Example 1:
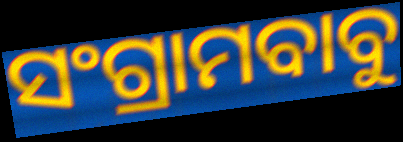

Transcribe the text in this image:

ସଂଗ୍ରାମବାବୁ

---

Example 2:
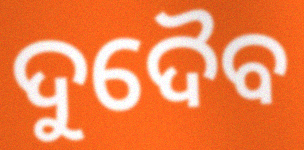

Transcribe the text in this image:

ଦୁଦୈବ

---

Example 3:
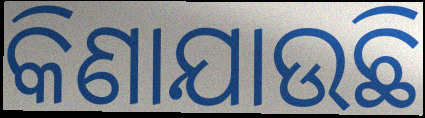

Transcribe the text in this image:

କିଣାଯାଉଛି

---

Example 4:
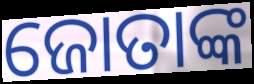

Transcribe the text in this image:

ଜୋତାଙ୍କ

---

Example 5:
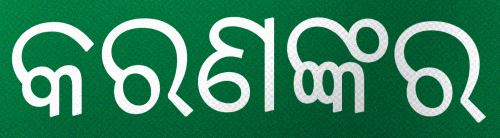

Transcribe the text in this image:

କରଣଙ୍କର